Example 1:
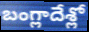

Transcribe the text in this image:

బంగ్లాదేశ్లో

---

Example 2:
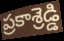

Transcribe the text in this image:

ప్రకాశ్రెడ్డి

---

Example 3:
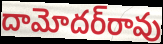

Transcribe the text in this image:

దామోదర్‌రావు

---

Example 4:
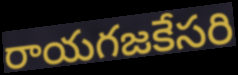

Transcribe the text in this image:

రాయగజకేసరి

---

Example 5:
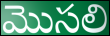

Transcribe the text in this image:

మొసలి